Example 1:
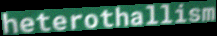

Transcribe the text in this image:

heterothallism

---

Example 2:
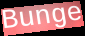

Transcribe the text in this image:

Bunge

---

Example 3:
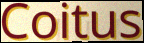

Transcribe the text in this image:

Coitus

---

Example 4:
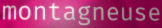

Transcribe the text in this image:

montagneuse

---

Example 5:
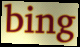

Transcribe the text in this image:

bing